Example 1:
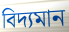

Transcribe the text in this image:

বিদ্যমান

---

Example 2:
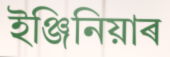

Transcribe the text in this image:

ইঞ্জিনিয়াৰ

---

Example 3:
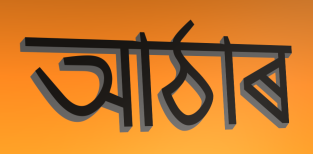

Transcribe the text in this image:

আঠাৰ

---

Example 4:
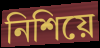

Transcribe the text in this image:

নিশিয়ে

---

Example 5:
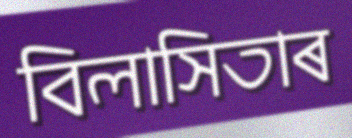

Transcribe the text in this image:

বিলাসিতাৰ